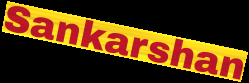
Sankarshan